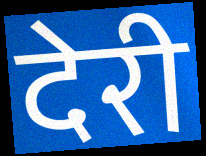
देरी